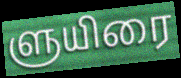
ளுயிரை